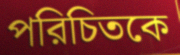
পরিচিতকে